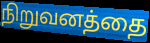
நிறுவனத்தை